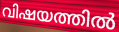
വിഷയത്തിൽ